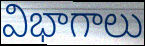
విభాగాలు